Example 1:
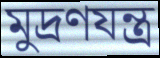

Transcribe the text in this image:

মুদ্রণযন্ত্র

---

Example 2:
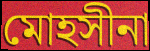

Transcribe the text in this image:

মোহসীনা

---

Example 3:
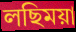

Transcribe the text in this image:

লছিময়া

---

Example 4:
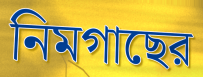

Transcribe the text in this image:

নিমগাছের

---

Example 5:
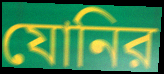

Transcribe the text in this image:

যোনির